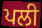
ਪਲੀ